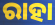
ରାହା